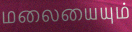
மலையையும்